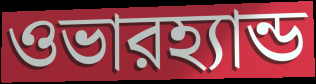
ওভারহ্যান্ড